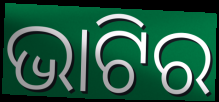
ଭାଟିର